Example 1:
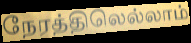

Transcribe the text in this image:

நேரத்திலெல்லாம்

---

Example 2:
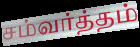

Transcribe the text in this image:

சம்வர்த்தம்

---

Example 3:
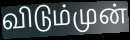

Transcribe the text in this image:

விடும்முன்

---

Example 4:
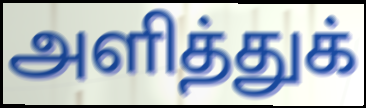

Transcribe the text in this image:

அளித்துக்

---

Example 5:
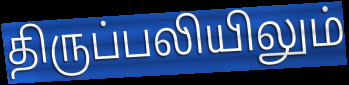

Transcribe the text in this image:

திருப்பலியிலும்